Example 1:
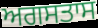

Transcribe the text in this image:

ਅਗਸਤਾਸ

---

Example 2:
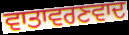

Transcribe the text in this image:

ਵਾਤਾਵਰਣਵਾਦ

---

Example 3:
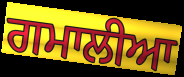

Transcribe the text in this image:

ਗਮਾਲੀਆ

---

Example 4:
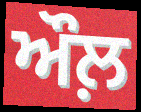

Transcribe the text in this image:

ਔਲ਼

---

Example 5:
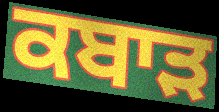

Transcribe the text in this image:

ਕਬਾਡ਼